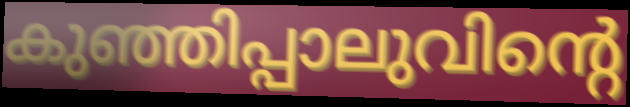
കുഞ്ഞിപ്പാലുവിന്റെ